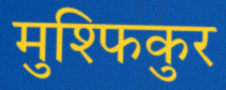
मुश्फिकुर